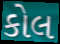
કોલ